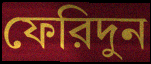
ফেরিদুন